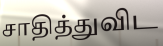
சாதித்துவிட